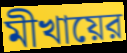
মীখায়ের